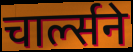
चार्ल्सने